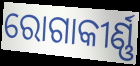
ରୋଗାକୀର୍ଣ୍ଣ